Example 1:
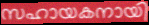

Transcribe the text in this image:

സഹായകനായി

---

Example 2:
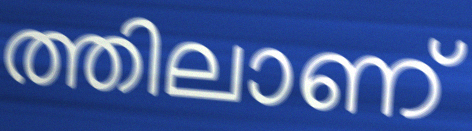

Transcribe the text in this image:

ത്തിലാണ്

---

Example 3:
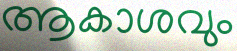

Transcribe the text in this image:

ആകാശവും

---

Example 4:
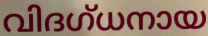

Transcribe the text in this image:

വിദഗ്ധനായ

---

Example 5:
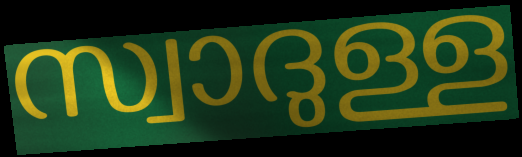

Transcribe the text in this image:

സ്വാദുള്ള